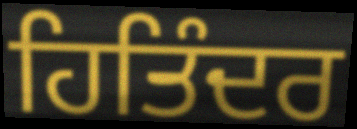
ਹਿਤਿੰਦਰ